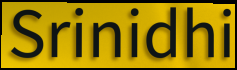
Srinidhi